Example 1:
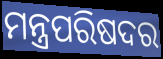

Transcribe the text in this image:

ମନ୍ତ୍ରପରିଷଦର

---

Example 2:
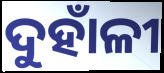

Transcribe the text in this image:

ଦୁହାଁଳୀ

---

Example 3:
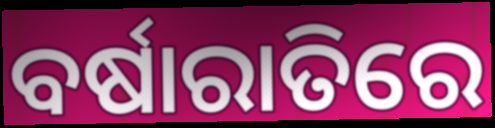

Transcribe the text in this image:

ବର୍ଷାରାତିରେ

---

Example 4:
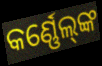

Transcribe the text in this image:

କର୍ଣ୍ଣେଲ୍‌ଙ୍କ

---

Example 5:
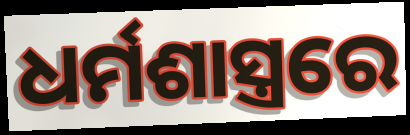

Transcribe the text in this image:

ଧର୍ମଶାସ୍ତ୍ରରେ